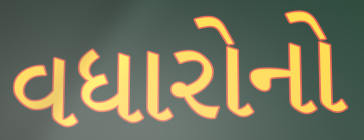
વધારોનો